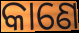
କାଣେ